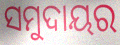
ସମୁଦାୟର